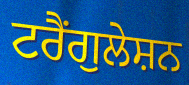
ਟਰੈਂਗੁਲੇਸ਼ਨ